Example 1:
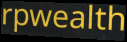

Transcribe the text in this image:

rpwealth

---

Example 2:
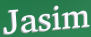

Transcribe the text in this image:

Jasim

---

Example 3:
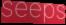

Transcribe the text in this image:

seeps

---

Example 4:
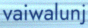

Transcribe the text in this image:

vaiwalunj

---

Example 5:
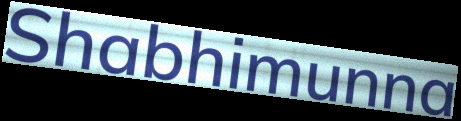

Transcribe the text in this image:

Shabhimunna